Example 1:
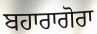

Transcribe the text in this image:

ਬਹਾਰਾਗੋਰਾ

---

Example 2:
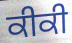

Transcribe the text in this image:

ਕੀਕੀ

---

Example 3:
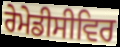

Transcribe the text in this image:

ਰੇਮੇਡੀਸੀਵਿਰ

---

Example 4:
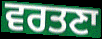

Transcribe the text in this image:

ਵਰਤਣਾ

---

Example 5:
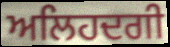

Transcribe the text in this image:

ਅਲਿਹਦਗੀ